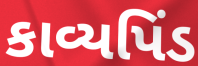
કાવ્યપિંડ